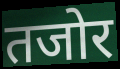
तजोर